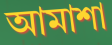
আমাশা